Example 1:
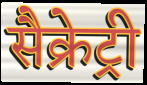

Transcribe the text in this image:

सैक्रेट्री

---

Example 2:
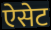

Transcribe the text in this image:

ऐसेट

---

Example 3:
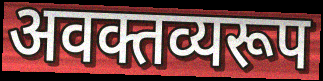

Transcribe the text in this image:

अवक्तव्यरूप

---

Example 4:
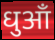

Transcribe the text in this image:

धुआँ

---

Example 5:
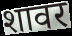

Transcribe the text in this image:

शावर